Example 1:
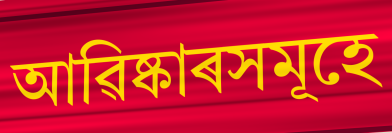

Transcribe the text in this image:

আৱিষ্কাৰসমূহে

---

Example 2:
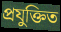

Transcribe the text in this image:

প্ৰযুক্তিত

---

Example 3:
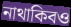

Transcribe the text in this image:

নাথাকিবও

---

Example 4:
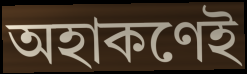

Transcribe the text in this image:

অহাকণেই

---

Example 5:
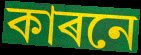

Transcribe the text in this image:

কাৰনে